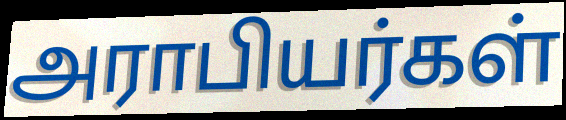
அராபியர்கள்